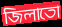
জিলাতো